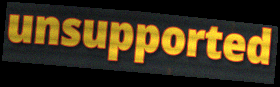
unsupported